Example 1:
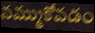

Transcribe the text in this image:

నమ్ముకోవడం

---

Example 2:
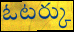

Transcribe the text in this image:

ఓటర్కు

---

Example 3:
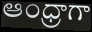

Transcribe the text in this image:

ఆంధ్రాగా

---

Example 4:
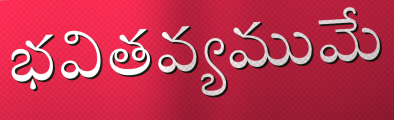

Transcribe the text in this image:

భవితవ్యముమే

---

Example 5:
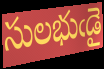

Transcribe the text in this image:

సులభుఁడై